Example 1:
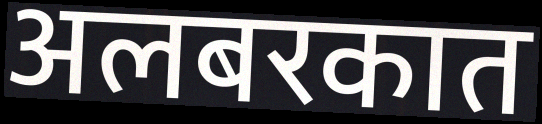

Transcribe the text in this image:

अलबरकात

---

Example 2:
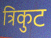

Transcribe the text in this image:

त्रिकुट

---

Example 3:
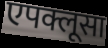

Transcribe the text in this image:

एपक्लूसा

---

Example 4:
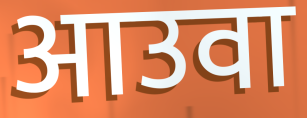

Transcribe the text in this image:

आउवा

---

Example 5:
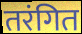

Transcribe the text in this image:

तरंगित